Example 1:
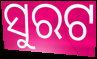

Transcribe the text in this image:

ସୁରଟ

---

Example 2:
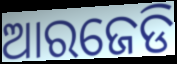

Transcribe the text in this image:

ଆରଜେଡି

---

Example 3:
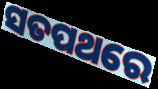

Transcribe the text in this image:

ସତପଥରେ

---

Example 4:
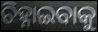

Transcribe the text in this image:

ଚିହ୍ନାଇବାକୁ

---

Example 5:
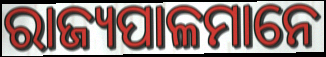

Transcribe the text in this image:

ରାଜ୍ୟପାଳମାନେ